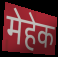
मेहेक